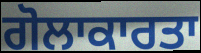
ਗੋਲਾਕਾਰਤਾ